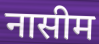
नासीम